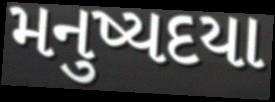
મનુષ્યદયા